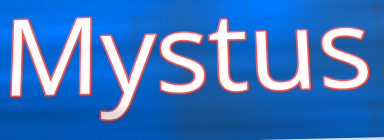
Mystus